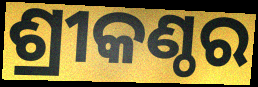
ଶ୍ରୀକଣ୍ଠର